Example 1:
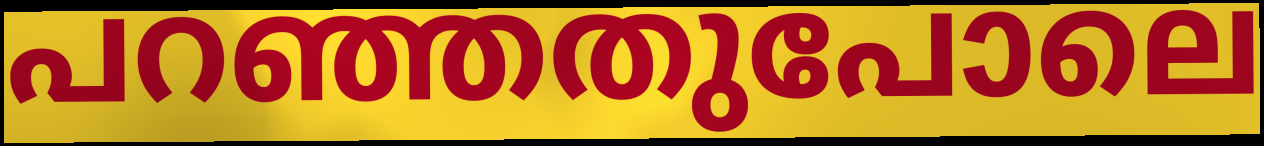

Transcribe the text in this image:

പറഞ്ഞതുപോലെ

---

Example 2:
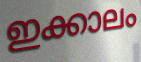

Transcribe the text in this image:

ഇക്കാലം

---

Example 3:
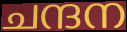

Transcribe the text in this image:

ചന്ദന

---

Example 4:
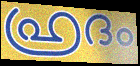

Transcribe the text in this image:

ഹ്രദം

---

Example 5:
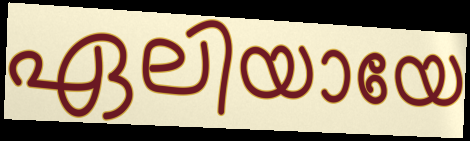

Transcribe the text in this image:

ഏലിയായേ